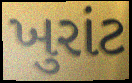
ખુરાંટ